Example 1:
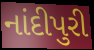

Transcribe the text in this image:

નાંદીપુરી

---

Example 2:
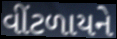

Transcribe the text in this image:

વીંટળાયને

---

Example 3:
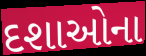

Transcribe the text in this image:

દશાઓના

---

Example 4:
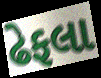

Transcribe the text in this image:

ઢેફલા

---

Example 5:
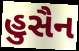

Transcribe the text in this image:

હુસૈન